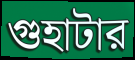
গুহাটার